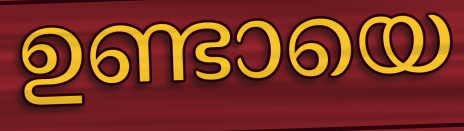
ഉണ്ടായെ